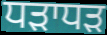
ਧੜਾਧੜ